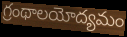
గ్రంథాలయోద్యమం